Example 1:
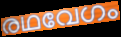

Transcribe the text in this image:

രഥവേഗം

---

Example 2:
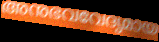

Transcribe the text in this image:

അനുഭവവേദ്യമായ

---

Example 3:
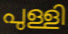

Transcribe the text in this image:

പുള്ളി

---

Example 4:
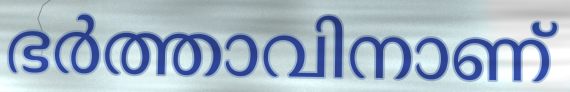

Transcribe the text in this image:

ഭർത്താവിനാണ്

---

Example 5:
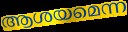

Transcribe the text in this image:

ആശയമെന്ന